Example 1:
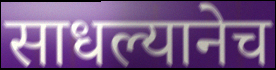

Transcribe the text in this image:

साधल्यानेच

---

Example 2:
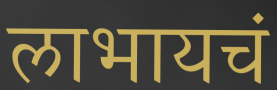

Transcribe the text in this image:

लाभायचं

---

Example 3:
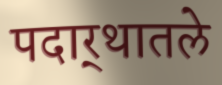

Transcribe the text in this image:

पदार्थातले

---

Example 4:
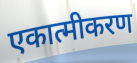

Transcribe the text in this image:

एकात्मीकरण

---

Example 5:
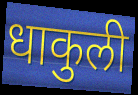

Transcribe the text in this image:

धाकुली